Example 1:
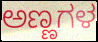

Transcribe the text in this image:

ಅಣ್ಣಗಳ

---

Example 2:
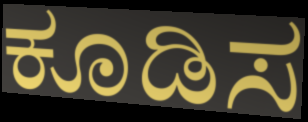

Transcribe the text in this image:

ಕೂಡಿಸ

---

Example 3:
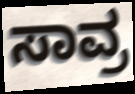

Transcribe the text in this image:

ಸಾವ್ರ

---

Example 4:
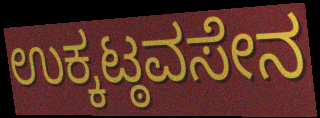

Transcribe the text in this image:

ಉಕ್ಕಟ್ಠವಸೇನ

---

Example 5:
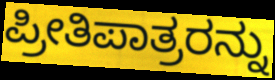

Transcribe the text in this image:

ಪ್ರೀತಿಪಾತ್ರರನ್ನು